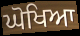
ਘੋਖਿਆ